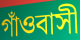
গাঁওবাসী